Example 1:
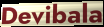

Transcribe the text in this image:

Devibala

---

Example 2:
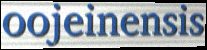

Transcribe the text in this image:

oojeinensis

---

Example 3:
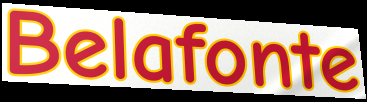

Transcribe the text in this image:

Belafonte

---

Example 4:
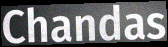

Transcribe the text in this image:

Chandas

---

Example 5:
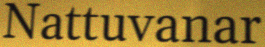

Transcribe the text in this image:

Nattuvanar